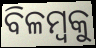
ବିଳମ୍ୱକୁ